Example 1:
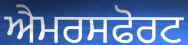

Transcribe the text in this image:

ਐਮਰਸਫੋਰਟ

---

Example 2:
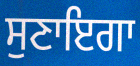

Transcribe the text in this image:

ਸੁਣਾਇਗਾ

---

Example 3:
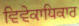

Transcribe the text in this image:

ਵਿਵੇਕਾਧਿਕਾਰ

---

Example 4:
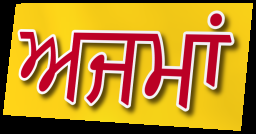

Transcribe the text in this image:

ਅਜਮਾਂ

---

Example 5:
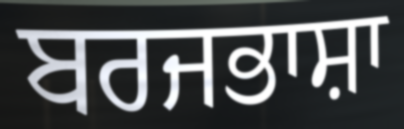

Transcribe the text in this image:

ਬਰਜਭਾਸ਼ਾ